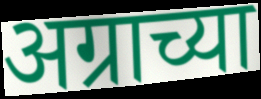
अग्राच्या